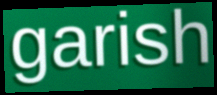
garish